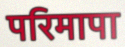
परिमापा